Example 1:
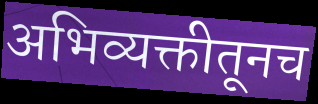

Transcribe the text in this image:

अभिव्यक्तीतूनच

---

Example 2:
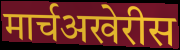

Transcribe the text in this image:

मार्चअखेरीस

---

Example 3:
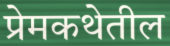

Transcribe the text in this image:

प्रेमकथेतील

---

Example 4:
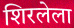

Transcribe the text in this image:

शिरलेला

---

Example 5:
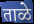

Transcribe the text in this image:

ताळे